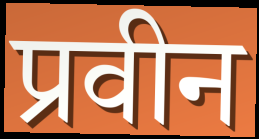
प्रवीन